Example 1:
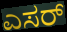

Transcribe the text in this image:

ಎಸರ್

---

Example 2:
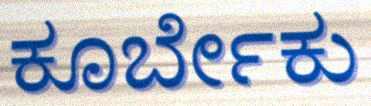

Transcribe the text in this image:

ಕೂರ್ಬೇಕು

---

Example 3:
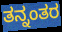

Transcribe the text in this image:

ತನ್ನಂತರ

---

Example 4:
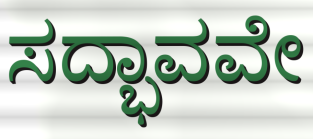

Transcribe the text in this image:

ಸದ್ಭಾವವೇ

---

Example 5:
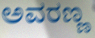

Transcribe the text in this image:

ಅವರಣ್ಣ